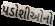
પડોશીઓનો